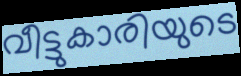
വീട്ടുകാരിയുടെ